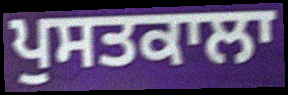
ਪੁਸਤਕਾਲਾ